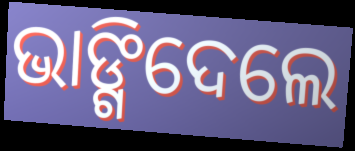
ଭାଙ୍ଗିଦେଲେ